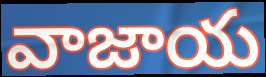
వాజాయ